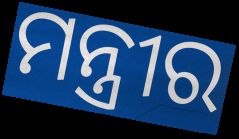
ମନ୍ତ୍ରୀର